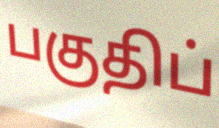
பகுதிப்